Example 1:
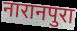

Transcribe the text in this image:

नारानपुरा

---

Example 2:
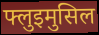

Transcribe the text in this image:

फ्लुइमुसिल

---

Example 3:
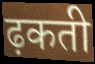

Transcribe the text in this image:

ढ़कती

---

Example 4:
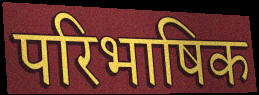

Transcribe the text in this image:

परिभाषिक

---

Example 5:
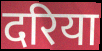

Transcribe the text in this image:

दरिया